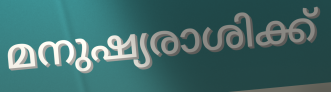
മനുഷ്യരാശിക്ക്